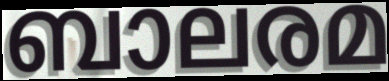
ബാലരമ